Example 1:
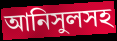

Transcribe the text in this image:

আনিসুলসহ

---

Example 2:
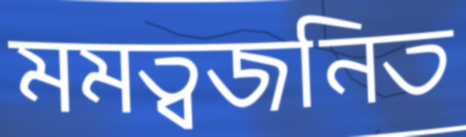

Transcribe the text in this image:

মমত্বজনিত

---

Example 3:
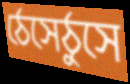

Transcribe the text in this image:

ঠেসেঠুসে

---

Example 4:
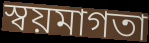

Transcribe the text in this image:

স্বয়মাগতা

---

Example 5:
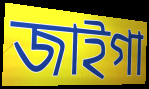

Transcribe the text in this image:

জাইগা